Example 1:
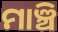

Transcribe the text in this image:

ମାଞ୍ଚି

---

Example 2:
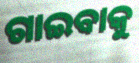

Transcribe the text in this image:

ଗାଇବାକୁ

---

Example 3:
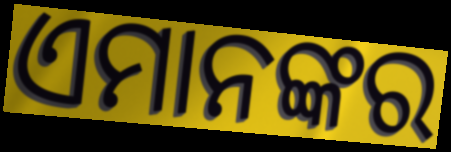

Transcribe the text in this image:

ଏମାନଙ୍କର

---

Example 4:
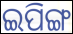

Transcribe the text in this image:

ଇପିଙ୍ଗ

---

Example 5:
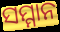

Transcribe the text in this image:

ସମ୍ମାନ